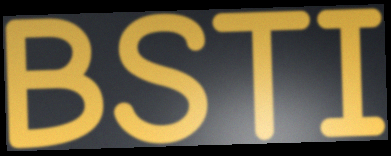
BSTI